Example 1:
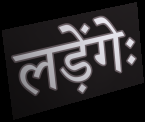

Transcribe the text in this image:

लड़ेंगेः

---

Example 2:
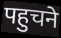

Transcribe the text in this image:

पहुचने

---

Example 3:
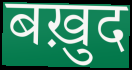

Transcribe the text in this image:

बख़ुद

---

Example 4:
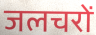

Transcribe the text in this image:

जलचरों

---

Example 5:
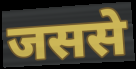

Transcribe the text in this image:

जससे